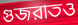
গুজরাতও